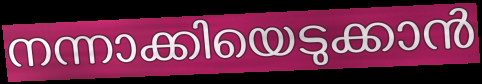
നന്നാക്കിയെടുക്കാൻ